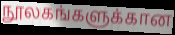
நூலகங்களுக்கான